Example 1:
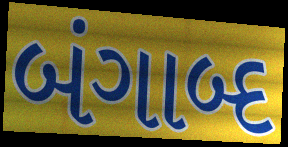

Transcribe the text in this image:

બંગાબ્દ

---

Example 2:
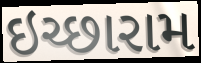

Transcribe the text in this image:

ઇચ્છારામ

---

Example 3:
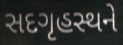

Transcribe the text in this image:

સદગૃહસ્થને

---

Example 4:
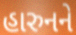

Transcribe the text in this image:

હારુનને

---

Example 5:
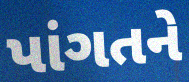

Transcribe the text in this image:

પાંગતને